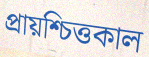
প্রায়শ্চিত্তকাল